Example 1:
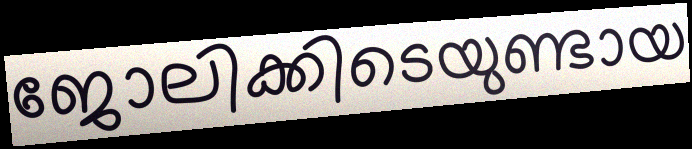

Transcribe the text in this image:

ജോലിക്കിടെയുണ്ടായ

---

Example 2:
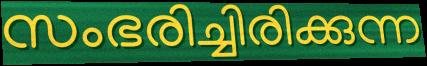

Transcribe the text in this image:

സംഭരിച്ചിരിക്കുന്ന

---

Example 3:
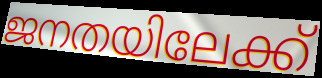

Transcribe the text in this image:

ജനതയിലേക്ക്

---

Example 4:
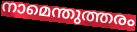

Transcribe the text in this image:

നാമെന്തുത്തരം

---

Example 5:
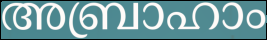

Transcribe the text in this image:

അബ്രാഹാം